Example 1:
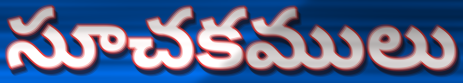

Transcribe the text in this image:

సూచకములు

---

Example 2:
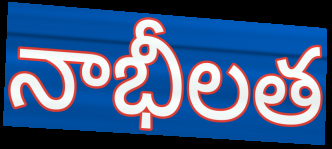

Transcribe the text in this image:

నాభీలత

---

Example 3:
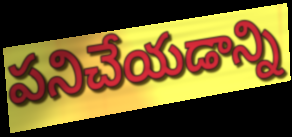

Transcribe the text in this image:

పనిచేయడాన్ని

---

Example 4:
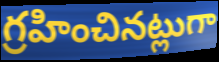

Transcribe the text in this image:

గ్రహించినట్లుగా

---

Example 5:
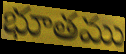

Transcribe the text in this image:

భూతము